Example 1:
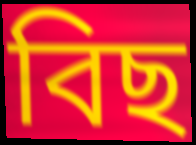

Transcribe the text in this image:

বিছ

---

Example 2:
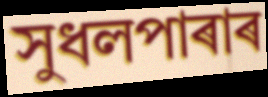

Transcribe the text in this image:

সুধলপাৰাৰ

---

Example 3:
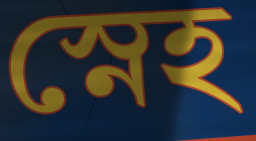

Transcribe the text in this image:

স্নেহ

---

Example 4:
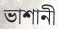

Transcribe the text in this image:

ভাশানী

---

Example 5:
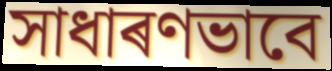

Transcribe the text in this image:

সাধাৰণভাবে